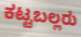
ಕಟ್ಟಬಲ್ಲರು